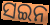
ସଇନ